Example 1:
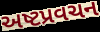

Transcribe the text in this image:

અષ્ટપ્રવચન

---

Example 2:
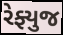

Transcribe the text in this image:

રેફ્યુજ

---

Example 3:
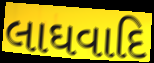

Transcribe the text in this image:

લાઘવાદિ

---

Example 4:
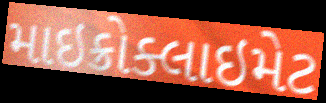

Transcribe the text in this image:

માઇક્રોક્લાઇમેટ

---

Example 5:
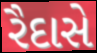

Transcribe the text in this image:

રૈદાસે